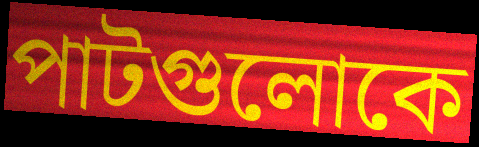
পাটগুলোকে